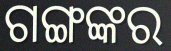
ଗଙ୍ଗଙ୍କର